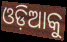
ଓଡ଼ିଆକୁ